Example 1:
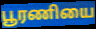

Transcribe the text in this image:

பூரணியை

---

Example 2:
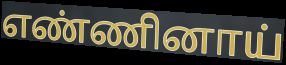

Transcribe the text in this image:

எண்ணினாய்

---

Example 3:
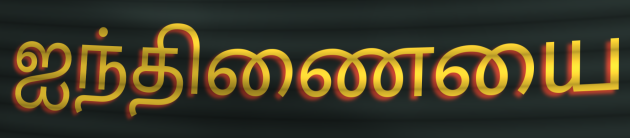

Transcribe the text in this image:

ஐந்திணையை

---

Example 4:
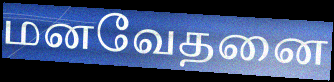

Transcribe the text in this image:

மனவேதனை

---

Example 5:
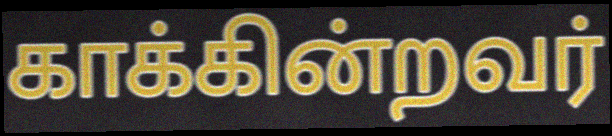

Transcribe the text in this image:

காக்கின்றவர்